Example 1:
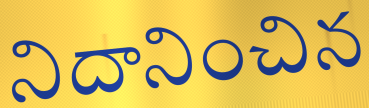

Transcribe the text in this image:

నిదానించిన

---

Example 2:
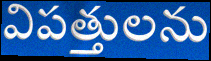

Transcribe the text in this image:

విపత్తులను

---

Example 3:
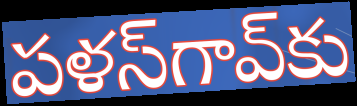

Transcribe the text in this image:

పళస్‌గావ్‌కు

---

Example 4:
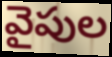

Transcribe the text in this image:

వైపుల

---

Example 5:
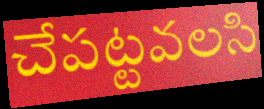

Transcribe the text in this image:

చేపట్టవలసి